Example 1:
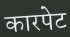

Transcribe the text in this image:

कारपेट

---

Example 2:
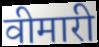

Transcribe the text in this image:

वीमारी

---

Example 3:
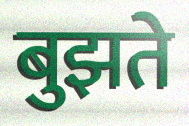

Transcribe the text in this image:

बुझते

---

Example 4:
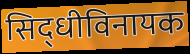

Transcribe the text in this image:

सिद्धीविनायक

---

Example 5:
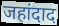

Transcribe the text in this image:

जहांदाद